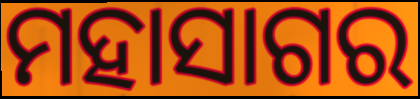
ମହାସାଗର